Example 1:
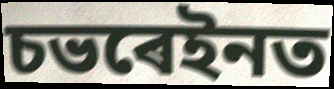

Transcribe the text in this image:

চভৰেইনত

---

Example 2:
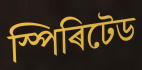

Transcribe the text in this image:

স্পিৰিটেড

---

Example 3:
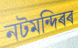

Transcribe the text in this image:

নটমন্দিৰৰ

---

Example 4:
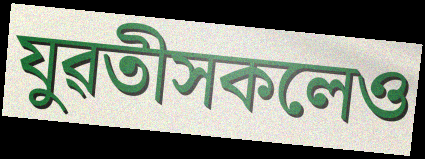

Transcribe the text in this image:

যুৱতীসকলেও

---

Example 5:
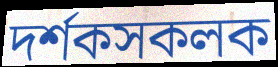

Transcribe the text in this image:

দৰ্শকসকলক